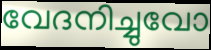
വേദനിച്ചുവോ